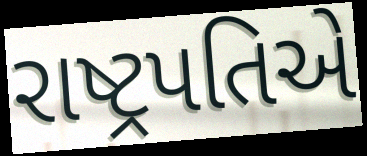
રાષ્ટ્રપતિએ